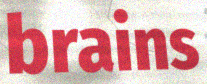
brains